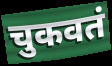
चुकवतं